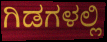
ಗಿಡಗಳಲ್ಲಿ